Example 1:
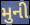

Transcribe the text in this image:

મુની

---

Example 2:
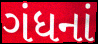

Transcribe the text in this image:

ગંધનાં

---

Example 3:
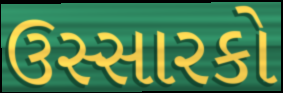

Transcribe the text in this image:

ઉસ્સારકો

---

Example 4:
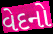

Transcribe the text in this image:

વેદનો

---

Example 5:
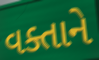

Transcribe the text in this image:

વક્તાને